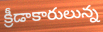
క్రీడాకారులున్న